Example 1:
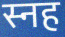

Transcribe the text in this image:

स्नह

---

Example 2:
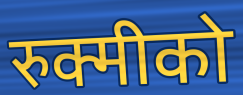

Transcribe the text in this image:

रुक्मीको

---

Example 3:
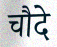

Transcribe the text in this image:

चौदे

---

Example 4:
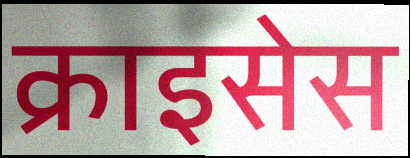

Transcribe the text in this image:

क्राइसेस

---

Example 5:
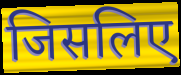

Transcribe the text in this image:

जिसलिए